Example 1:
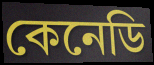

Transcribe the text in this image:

কেনেডি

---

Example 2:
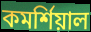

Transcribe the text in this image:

কমর্শিয়াল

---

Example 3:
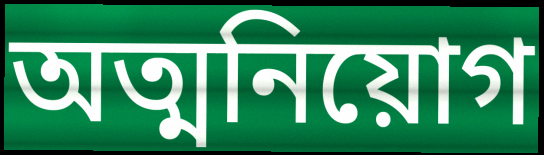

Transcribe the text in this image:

অত্মনিয়োগ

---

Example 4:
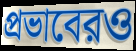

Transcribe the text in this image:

প্রভাবেরও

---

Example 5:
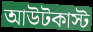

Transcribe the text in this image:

আউটকাস্ট